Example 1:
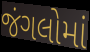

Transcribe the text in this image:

જંગલોમાં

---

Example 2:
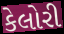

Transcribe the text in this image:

કેલોરી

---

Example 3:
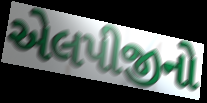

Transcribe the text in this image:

એલપીજીનો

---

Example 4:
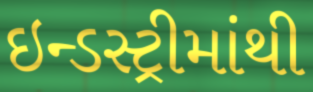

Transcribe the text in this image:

ઇન્ડસ્ટ્રીમાંથી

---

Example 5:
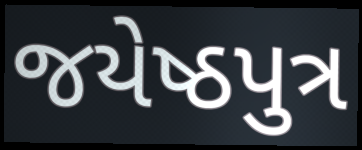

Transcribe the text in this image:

જયેષ્ઠપુત્ર